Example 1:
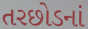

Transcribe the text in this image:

તરછોડનાં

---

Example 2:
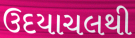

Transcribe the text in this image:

ઉદયાચલથી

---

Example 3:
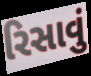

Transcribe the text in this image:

રિસાવું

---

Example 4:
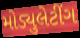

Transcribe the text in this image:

મોડ્યુલેટીંગ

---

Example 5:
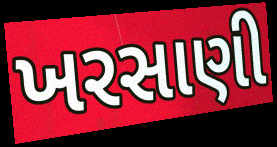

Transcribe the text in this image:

ખરસાણી